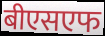
बीएसएफ